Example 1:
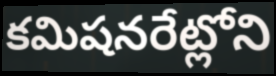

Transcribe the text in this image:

కమిషనరేట్లోని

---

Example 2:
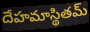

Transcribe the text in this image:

దేహమాస్థితమ్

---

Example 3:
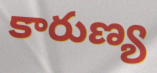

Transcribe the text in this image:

కారుణ్య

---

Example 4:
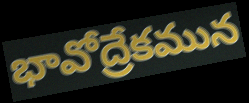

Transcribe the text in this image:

భావోద్రేకమున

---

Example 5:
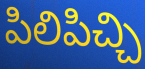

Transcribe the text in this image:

పిలిపిచ్చి